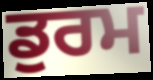
ਡੁਰਮ